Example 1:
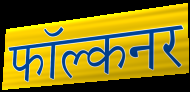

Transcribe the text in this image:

फॉल्कनर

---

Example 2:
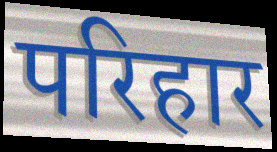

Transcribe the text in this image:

परिहार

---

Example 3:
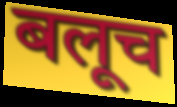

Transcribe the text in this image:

बलूच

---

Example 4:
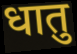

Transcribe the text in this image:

धातु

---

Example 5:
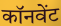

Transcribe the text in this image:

कॉनवेंट